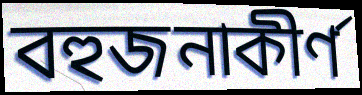
বহুজনাকীর্ণ